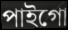
পাইগো